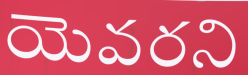
యెవరని